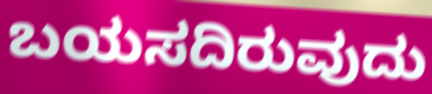
ಬಯಸದಿರುವುದು